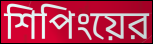
শিপিংয়ের